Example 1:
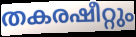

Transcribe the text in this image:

തകരഷീറ്റും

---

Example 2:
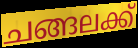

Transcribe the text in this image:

ചങ്ങലക്ക്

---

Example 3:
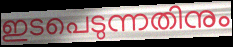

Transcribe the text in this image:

ഇടപെടുന്നതിനും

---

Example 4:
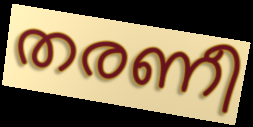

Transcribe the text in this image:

തരണീ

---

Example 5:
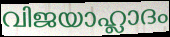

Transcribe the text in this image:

വിജയാഹ്ലാദം